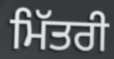
ਮਿੱਤਰੀ